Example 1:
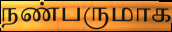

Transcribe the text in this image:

நண்பருமாக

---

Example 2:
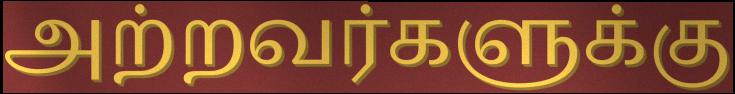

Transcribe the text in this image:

அற்றவர்களுக்கு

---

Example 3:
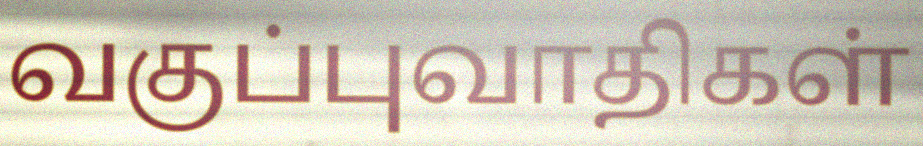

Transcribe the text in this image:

வகுப்புவாதிகள்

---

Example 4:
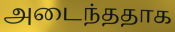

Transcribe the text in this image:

அடைந்ததாக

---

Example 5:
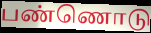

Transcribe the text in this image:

பண்ணொடு